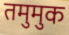
तमुमुक